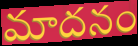
మాదనం